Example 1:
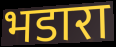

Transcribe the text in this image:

भडारा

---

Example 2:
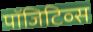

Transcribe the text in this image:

पॉजिटिव्स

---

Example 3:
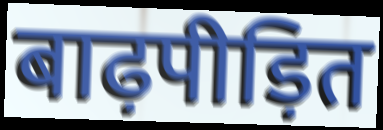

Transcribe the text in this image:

बाढ़पीड़ित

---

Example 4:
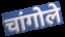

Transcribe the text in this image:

चांगोले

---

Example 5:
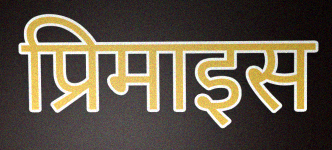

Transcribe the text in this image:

प्रिमाइस